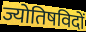
ज्योतिषविदों